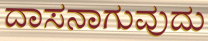
ದಾಸನಾಗುವುದು